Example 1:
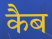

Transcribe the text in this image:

कैब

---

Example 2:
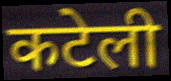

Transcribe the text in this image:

कटेली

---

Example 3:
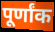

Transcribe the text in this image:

पूर्णांक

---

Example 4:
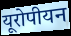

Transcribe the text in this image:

यूरोपीयन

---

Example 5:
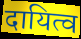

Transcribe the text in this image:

दायित्व